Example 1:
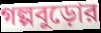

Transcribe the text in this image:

গল্পবুড়োর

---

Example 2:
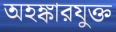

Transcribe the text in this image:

অহঙ্কারযুক্ত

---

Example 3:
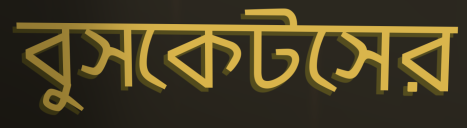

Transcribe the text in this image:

বুসকেটসের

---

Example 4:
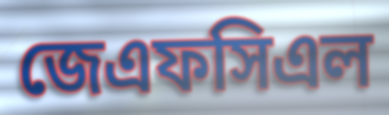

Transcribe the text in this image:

জেএফসিএল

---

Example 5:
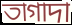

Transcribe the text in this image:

তাগাদা